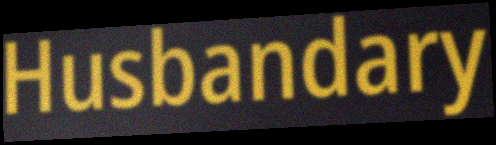
Husbandary